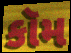
કૉમ